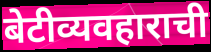
बेटीव्यवहाराची